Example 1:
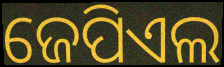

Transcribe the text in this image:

ଜେପିଏଲ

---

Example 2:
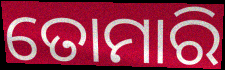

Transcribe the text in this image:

ତୋମାରି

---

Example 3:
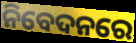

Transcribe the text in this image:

ନିବେଦନରେ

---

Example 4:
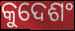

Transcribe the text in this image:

କୁଦେଶଂ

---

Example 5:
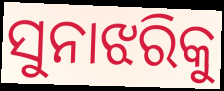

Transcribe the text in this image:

ସୁନାଝରିକୁ